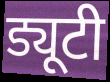
ड्यूटी